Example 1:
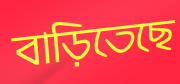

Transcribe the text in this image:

বাড়িতেছে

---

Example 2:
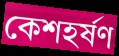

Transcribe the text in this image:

কেশহর্ষণ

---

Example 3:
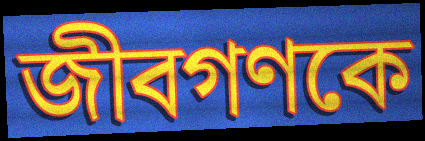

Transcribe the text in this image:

জীবগণকে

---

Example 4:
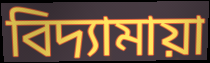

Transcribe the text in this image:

বিদ্যামায়া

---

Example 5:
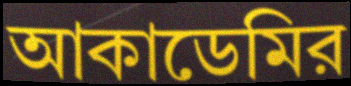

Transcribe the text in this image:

আকাডেমির